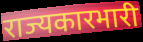
राज्यकारभारी